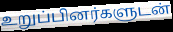
உறுப்பினர்களுடன்